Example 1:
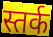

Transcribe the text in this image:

स्तर्क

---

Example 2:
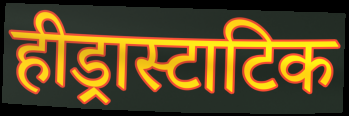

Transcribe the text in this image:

हीड्रास्टाटिक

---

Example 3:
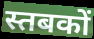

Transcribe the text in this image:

स्तबकों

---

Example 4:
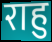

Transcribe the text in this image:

राहु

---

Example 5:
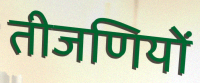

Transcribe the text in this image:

तीजणियों